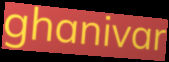
ghanivar